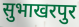
सुभाखरपुर